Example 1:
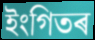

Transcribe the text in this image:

ইংগিতৰ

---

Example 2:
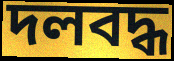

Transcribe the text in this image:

দলবদ্ধ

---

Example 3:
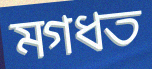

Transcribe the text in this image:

মগধত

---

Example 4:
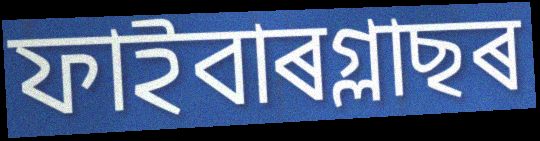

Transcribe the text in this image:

ফাইবাৰগ্লাছৰ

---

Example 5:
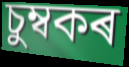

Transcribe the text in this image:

চুম্বকৰ